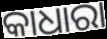
କାଧାରା